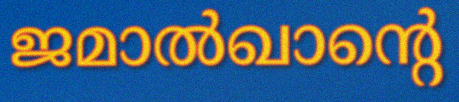
ജമാൽഖാന്റെ